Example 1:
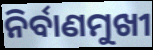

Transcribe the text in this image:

ନିର୍ବାଣମୁଖୀ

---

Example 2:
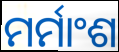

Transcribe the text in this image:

ମର୍ମାଂଶ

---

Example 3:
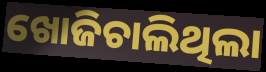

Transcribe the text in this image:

ଖୋଜିଚାଲିଥିଲା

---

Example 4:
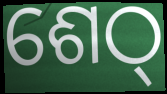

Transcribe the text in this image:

ଶେଠ୍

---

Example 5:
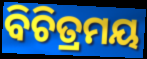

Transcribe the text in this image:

ବିଚିତ୍ରମୟ